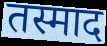
तस्माद